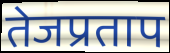
तेजप्रताप